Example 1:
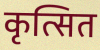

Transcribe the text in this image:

कृत्सित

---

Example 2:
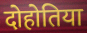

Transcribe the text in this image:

दोहोतिया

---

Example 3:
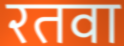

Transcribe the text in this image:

रतवा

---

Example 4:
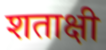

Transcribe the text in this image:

शताक्षी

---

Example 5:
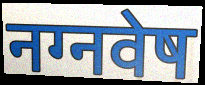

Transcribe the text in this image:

नग्नवेष